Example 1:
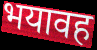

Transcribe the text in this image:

भयावह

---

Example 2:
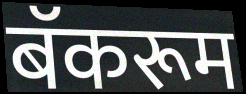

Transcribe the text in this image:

बॅकरूम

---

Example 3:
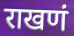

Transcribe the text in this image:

राखणं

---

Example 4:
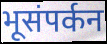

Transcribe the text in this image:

भूसंपर्कन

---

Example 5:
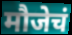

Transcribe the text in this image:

मौजेचं